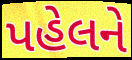
પહેલને